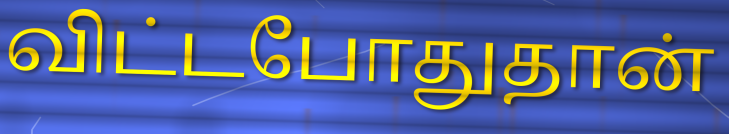
விட்டபோதுதான்